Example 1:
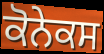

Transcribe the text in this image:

ਕੋਨੇਕਸ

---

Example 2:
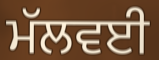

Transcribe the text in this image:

ਮੱਲਵਈ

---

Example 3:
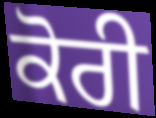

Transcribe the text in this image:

ਕੋਰੀ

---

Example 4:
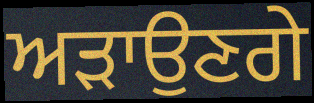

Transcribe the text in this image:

ਅੜਾਉਣਗੇ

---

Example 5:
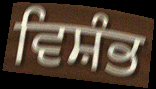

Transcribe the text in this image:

ਵਿਸ਼ੰਭ